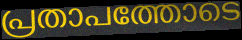
പ്രതാപത്തോടെ